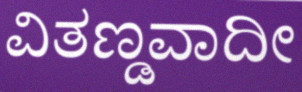
ವಿತಣ್ಡವಾದೀ